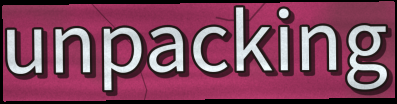
unpacking